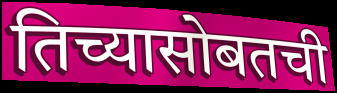
तिच्यासोबतची